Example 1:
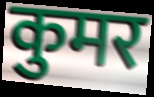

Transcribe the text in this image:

कुमर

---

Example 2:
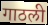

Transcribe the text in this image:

गाठली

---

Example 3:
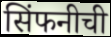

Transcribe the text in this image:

सिंफनीची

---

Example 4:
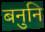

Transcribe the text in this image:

बनुनि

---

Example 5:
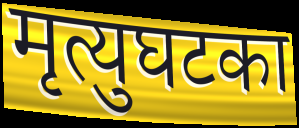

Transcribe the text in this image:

मृत्युघटका